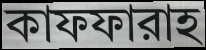
কাফফারাহ